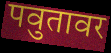
पवुतावर